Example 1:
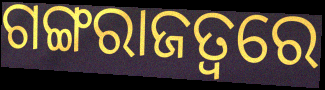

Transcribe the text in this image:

ଗଙ୍ଗରାଜତ୍ୱରେ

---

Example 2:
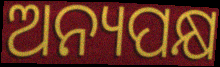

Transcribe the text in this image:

ଅନ୍ୟପକ୍ଷ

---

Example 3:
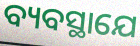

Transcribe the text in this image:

ବ୍ୟବସ୍ଥାଯେ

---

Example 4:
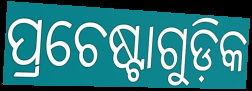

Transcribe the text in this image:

ପ୍ରଚେଷ୍ଟାଗୁଡ଼ିକ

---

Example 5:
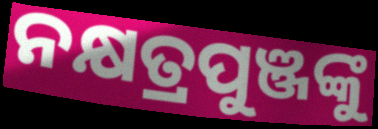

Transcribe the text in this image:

ନକ୍ଷତ୍ରପୁଞ୍ଜଙ୍କୁ